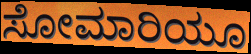
ಸೋಮಾರಿಯೂ